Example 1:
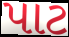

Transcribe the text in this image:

પાટ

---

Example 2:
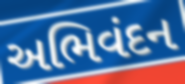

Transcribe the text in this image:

અભિવંદન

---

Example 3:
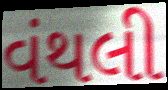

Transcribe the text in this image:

વંથલી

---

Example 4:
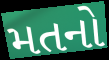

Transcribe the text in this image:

મતનો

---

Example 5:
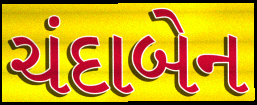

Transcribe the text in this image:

ચંદાબેન